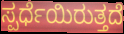
ಸ್ಪರ್ಧೆಯಿರುತ್ತದೆ